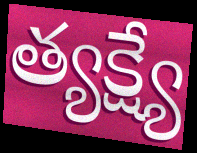
త్యక్ష్యే